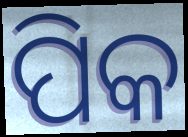
ପିକ